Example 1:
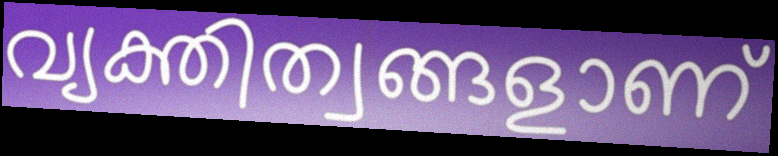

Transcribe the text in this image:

വ്യക്തിത്വങ്ങളാണ്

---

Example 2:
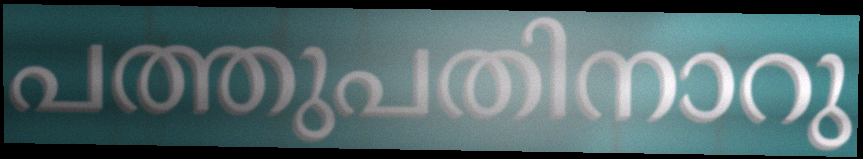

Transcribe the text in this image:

പത്തുപതിനാറു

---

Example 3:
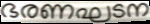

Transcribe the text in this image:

ഭരണഘടന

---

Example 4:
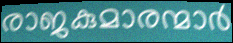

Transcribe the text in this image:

രാജകുമാരന്മാർ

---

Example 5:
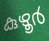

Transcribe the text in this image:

കുഴൂർ